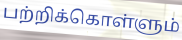
பற்றிக்கொள்ளும்